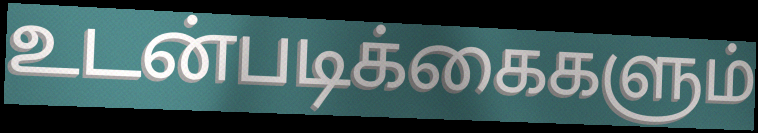
உடன்படிக்கைகளும்